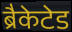
ब्रैकेटेड